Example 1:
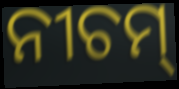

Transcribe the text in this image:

ନୀଚମ୍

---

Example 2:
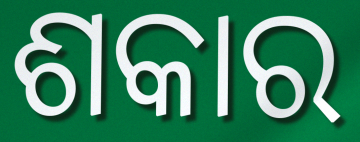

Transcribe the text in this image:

ଶକାର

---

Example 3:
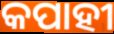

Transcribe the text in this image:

କପାହୀ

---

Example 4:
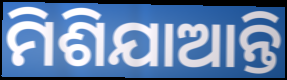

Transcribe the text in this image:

ମିଶିଯାଆନ୍ତି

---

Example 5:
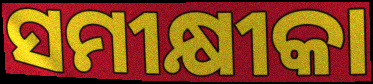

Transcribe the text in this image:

ସମୀକ୍ଷୀକା